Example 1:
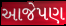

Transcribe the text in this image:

આજેપણ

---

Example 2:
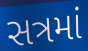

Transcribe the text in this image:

સત્રમાં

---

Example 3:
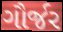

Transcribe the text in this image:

ગૌર્જર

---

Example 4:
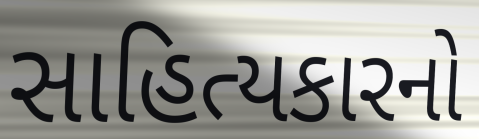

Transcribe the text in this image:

સાહિત્યકારનો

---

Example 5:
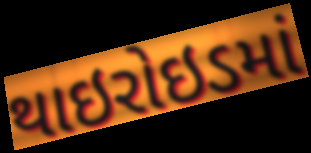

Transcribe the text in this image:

થાઇરોઇડમાં